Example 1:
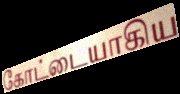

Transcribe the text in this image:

கோட்டையாகிய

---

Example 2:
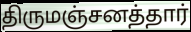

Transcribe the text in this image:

திருமஞ்சனத்தார்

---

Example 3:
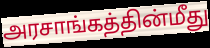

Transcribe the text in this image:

அரசாங்கத்தின்மீது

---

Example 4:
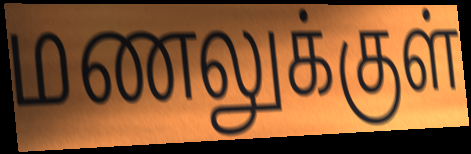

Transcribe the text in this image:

மணலுக்குள்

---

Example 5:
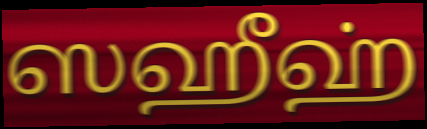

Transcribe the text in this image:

ஸஹீஹ்